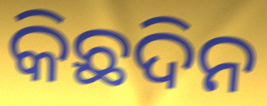
କିଛଦିନ